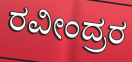
ರವೀಂದ್ರರ